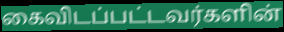
கைவிடப்பட்டவர்களின்